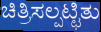
ಚಿತ್ರಿಸಲ್ಪಟ್ಟಿತು